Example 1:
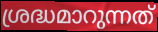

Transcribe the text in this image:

ശ്രദ്ധമാറുന്നത്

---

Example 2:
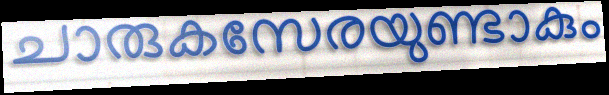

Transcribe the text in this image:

ചാരുകസേരയുണ്ടാകും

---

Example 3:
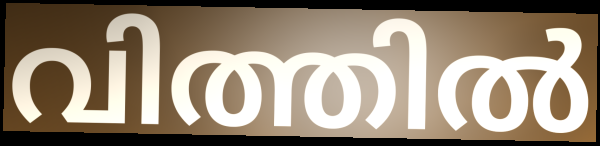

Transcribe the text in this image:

വിത്തിൽ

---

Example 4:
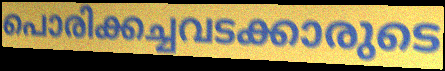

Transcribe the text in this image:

പൊരിക്കച്ചവടക്കാരുടെ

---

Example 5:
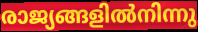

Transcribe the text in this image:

രാജ്യങ്ങളിൽനിന്നു